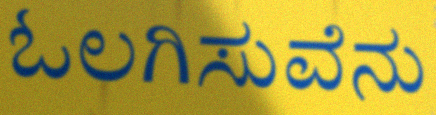
ಓಲಗಿಸುವೆನು